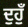
ਦੁਹੁਁ